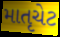
માતૃચેટ